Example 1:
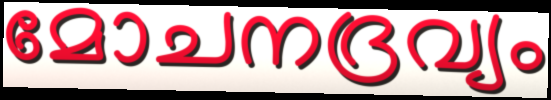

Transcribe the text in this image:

മോചനദ്രവ്യം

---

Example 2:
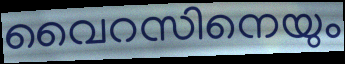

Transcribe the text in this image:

വൈറസിനെയും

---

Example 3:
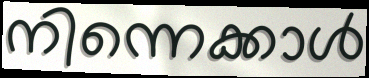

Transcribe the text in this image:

നിന്നെക്കാൾ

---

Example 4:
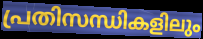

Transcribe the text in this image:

പ്രതിസന്ധികളിലും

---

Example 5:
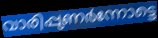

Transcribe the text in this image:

വാരിപ്പുണർന്നോട്ടെ